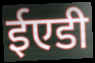
ईएडी